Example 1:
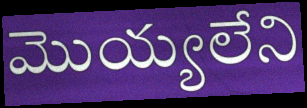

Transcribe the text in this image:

మొయ్యలేని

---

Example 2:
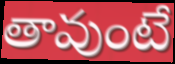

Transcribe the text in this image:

తావుంటే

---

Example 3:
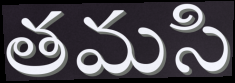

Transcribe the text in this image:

తమసి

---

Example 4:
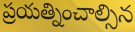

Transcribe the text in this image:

ప్రయత్నించాల్సిన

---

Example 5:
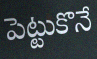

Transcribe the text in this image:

పెట్టుకొనే